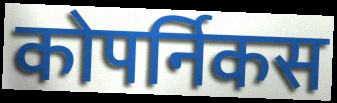
कोपर्निकस